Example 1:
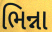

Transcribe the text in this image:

ભિન્ના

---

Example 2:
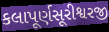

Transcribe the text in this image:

કલાપૂર્ણસૂરીશ્વરજી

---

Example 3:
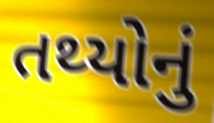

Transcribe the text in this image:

તથ્યોનું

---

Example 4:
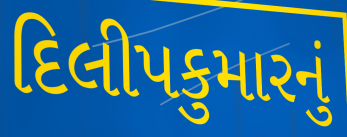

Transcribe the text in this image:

દિલીપકુમારનું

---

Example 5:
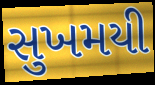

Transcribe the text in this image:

સુખમયી